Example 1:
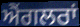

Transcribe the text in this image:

ਐਂਗਲਰਾਂ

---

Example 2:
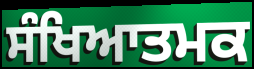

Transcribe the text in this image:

ਸੰਖਿਆਤਮਕ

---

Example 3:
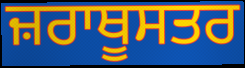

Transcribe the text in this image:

ਜ਼ਰਾਥੂਸਤਰ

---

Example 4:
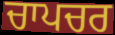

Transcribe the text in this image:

ਚਾਪਚਰ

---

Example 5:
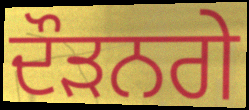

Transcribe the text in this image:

ਦੌੜਨਗੇ